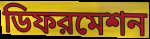
ডিফরমেশন